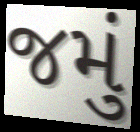
જમું